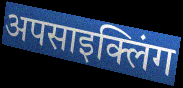
अपसाइक्लिंग